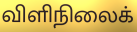
விளிநிலைக்